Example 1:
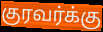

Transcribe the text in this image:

குரவர்க்கு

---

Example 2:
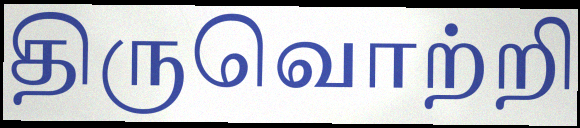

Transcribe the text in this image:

திருவொற்றி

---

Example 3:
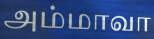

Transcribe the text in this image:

அம்மாவா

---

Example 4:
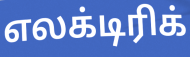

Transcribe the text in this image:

எலக்டிரிக்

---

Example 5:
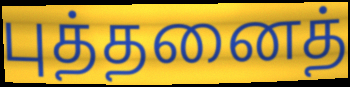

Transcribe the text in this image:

புத்தனைத்